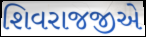
શિવરાજજીએ